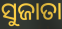
ସୁଜାତା